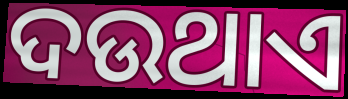
ଦଉଥାଏ